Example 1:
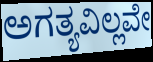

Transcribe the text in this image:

ಅಗತ್ಯವಿಲ್ಲವೇ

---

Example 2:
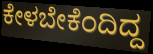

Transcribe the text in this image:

ಕೇಳಬೇಕೆಂದಿದ್ದ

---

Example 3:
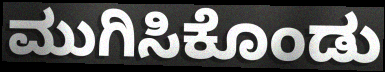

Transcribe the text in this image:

ಮುಗಿಸಿಕೊಂಡು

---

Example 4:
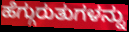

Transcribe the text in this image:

ಹೆಗ್ಗುರುತುಗಳನ್ನು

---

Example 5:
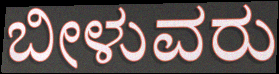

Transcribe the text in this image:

ಬೀಳುವರು